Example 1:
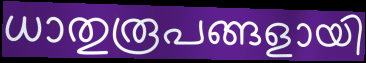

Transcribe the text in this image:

ധാതുരൂപങ്ങളായി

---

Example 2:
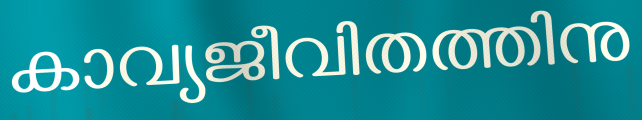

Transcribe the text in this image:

കാവ്യജീവിതത്തിനു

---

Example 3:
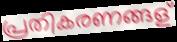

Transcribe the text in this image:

പ്രതികരണങ്ങള്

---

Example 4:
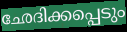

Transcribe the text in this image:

ഛേദിക്കപ്പെടും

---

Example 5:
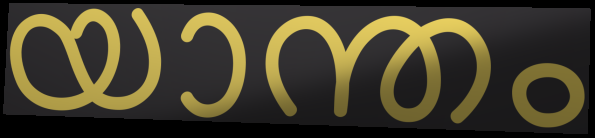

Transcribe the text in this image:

യാന്തം